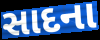
સાદના